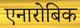
एनारोबिक